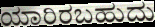
ಯಾರಿರಬಹುದು